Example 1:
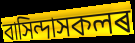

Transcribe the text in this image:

বাসিন্দাসকলৰ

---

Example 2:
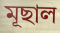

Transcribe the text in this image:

মূছাল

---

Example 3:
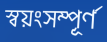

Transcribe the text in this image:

স্বয়ংসম্পূৰ্ণ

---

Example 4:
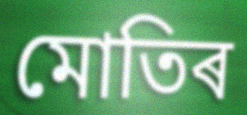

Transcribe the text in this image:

মোতিৰ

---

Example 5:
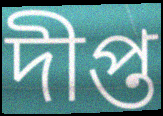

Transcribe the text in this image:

দীপ্ত